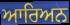
ਆਰਿਅਨ